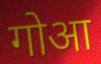
गोआ